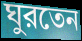
ঘুরতেন